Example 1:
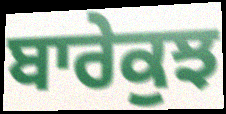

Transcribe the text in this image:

ਬਾਰੇਕੁਝ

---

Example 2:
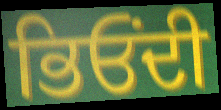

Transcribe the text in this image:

ਭਿਓਂਦੀ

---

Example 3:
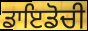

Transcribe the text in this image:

ਡਾਇਡੋਚੀ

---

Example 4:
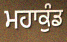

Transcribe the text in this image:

ਮਹਾਕੁੰਡ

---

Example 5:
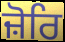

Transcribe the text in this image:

ਜ਼ੋਰਿ